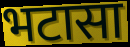
भटासा